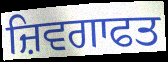
ਜ਼ਿਵਗਾਫਤ